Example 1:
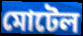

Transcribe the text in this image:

মোটেল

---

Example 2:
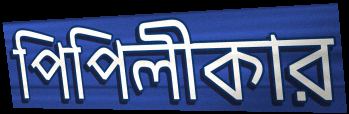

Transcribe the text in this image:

পিপিলীকার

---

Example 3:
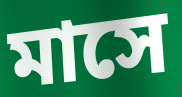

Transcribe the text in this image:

মাসে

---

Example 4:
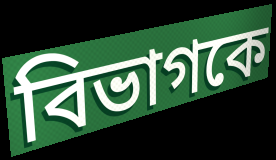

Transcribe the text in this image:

বিভাগকে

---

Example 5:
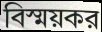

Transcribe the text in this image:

বিস্ময়কর